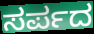
ಸರ್ಪದ